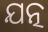
ଯତ୍ନ